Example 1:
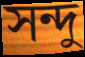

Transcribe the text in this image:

সন্দু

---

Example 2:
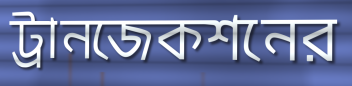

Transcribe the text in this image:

ট্রানজেকশনের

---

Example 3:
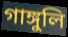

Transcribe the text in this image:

গাঙ্গুলি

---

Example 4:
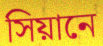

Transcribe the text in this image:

সিয়ানে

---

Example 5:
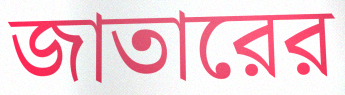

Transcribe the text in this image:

জাতারের